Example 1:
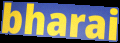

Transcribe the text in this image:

bharai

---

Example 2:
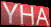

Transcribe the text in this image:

YHA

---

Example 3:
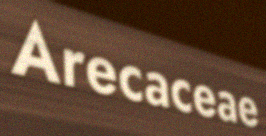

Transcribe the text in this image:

Arecaceae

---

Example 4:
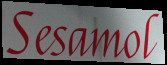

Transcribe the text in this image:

Sesamol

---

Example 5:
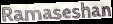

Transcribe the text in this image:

Ramaseshan